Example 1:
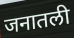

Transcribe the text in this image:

जनातली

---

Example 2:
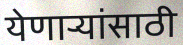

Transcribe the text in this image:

येणाऱ्यांसाठी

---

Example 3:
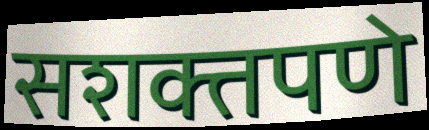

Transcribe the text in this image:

सशक्तपणे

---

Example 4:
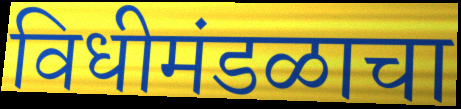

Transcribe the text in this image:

विधीमंडळाचा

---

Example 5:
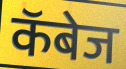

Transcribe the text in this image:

कॅबेज